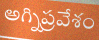
అగ్నిప్రవేశం